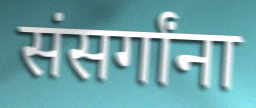
संसर्गांना